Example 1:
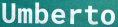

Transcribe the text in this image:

Umberto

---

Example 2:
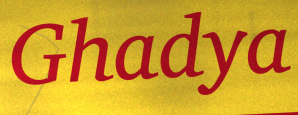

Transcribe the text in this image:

Ghadya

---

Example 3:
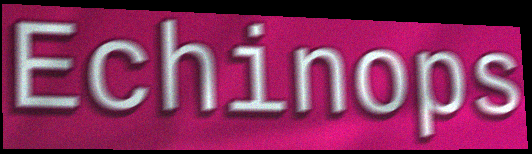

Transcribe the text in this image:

Echinops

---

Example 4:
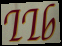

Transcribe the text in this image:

IIb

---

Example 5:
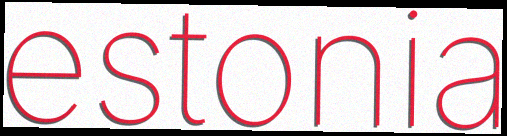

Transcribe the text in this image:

estonia